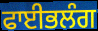
ਫਾਈਭਲੰਗ